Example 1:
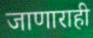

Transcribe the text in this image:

जाणाराही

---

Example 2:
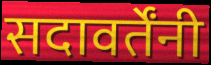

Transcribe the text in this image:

सदावर्तेंनी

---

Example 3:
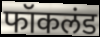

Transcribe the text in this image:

फॉकलंड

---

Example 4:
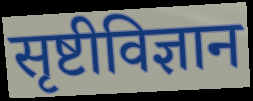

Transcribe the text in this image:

सृष्टीविज्ञान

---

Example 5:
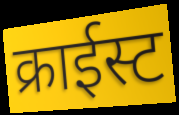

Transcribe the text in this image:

क्राईस्ट